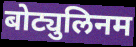
बोट्युलिनम